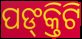
ପଙ୍‌କ୍ତିଟି